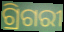
ଗ୍ରିଗରୀ